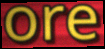
ore